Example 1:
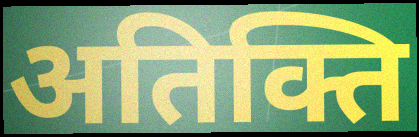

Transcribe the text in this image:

अतिक्ति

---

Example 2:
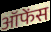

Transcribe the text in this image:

ऑफेंस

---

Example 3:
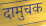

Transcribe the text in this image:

दामुचक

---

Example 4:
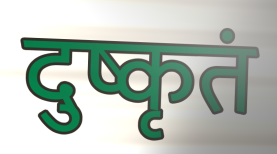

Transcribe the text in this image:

दुष्कृतं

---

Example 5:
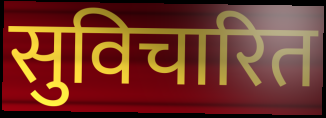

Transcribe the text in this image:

सुविचारित